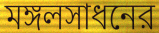
মঙ্গলসাধনের